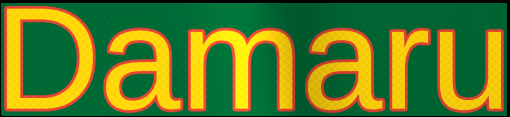
Damaru